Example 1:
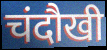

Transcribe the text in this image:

चंदौखी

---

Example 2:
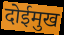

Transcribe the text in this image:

दोईमुख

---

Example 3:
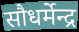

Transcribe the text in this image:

सौधर्मेन्द्र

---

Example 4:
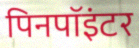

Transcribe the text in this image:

पिनपॉइंटर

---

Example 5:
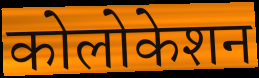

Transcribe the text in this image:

कोलोकेशन